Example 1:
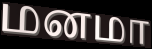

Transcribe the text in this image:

மனமா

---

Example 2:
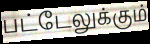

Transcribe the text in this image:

பட்டேலுக்கும்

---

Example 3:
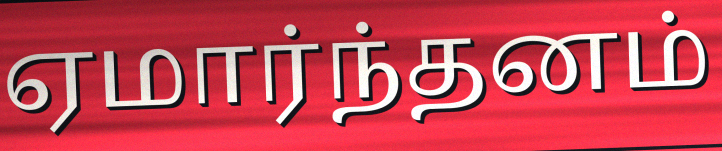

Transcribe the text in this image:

ஏமார்ந்தனம்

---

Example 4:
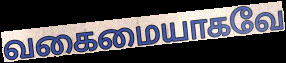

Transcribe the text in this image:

வகைமையாகவே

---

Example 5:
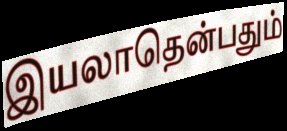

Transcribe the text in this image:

இயலாதென்பதும்